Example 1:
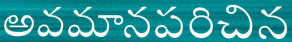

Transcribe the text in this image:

అవమానపరిచిన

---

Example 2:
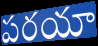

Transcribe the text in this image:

పరయా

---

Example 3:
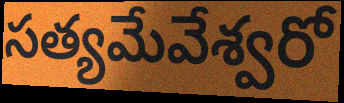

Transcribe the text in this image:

సత్యమేవేశ్వరో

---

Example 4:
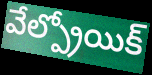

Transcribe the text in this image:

వేల్ప్రోయిక్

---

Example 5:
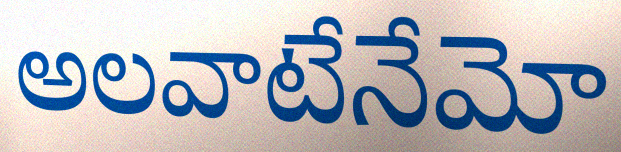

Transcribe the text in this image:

అలవాటేనేమో